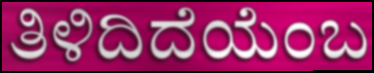
ತಿಳಿದಿದೆಯೆಂಬ